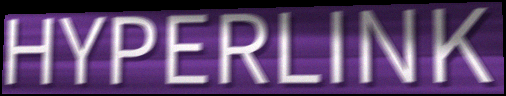
HYPERLINK